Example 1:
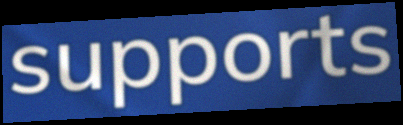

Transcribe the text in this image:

supports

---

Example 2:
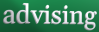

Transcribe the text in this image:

advising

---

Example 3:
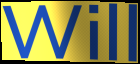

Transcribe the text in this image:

Will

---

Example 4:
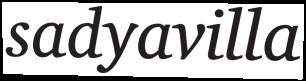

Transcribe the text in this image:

sadyavilla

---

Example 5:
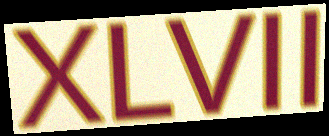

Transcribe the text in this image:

XLVII